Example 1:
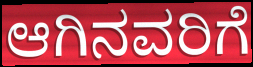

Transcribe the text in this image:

ಆಗಿನವರಿಗೆ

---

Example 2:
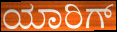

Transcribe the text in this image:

ಯಾರಿಗ್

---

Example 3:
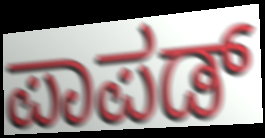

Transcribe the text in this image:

ಪಾಪಡ್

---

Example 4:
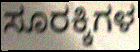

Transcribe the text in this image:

ಸೂರಕ್ಕಿಗಳ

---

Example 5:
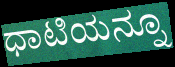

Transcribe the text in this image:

ಧಾಟಿಯನ್ನೂ